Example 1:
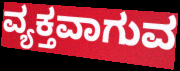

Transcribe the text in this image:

ವ್ಯಕ್ತವಾಗುವ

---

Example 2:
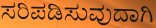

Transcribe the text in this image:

ಸರಿಪಡಿಸುವುದಾಗಿ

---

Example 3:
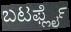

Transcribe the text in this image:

ಬಟರ್ಫ್ಲೈ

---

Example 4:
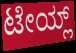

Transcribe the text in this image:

ಟೇಯ್ಲ್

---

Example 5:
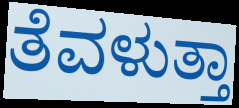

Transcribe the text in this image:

ತೆವಳುತ್ತಾ